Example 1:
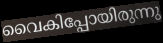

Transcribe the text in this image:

വൈകിപ്പോയിരുന്നു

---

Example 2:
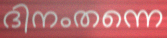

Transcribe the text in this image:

ദിനംതന്നെ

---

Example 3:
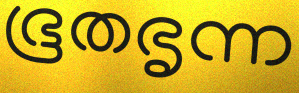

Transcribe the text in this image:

ഭൂതഭൃന്ന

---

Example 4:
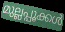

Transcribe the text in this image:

മുല്ലപ്പൂക്കൾ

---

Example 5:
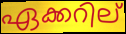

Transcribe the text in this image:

ഏക്കറില്